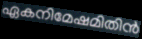
ഏകനിമേഷമിതിൻ